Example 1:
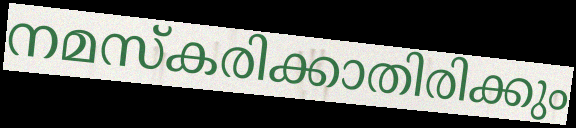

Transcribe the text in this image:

നമസ്കരിക്കാതിരിക്കും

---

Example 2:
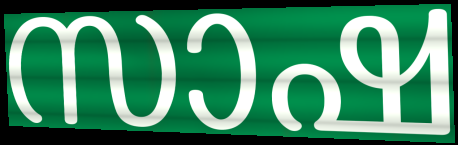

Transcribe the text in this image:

സാഷ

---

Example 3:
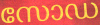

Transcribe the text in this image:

സോഡ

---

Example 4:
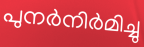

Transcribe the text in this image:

പുനർനിർമിച്ചു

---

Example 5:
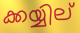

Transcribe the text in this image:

ക്കയ്യില്